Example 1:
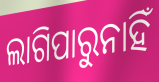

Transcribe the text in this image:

ଲାଗିପାରୁନାହିଁ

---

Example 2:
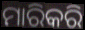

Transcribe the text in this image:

ମାରିକରି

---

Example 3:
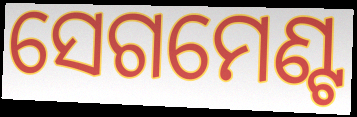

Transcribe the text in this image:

ସେଗମେଣ୍ଟ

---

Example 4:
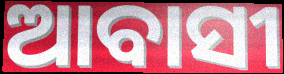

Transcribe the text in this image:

ଆବାସୀ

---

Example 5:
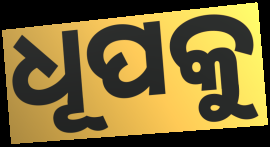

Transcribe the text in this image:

ଧୂପକୁ